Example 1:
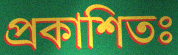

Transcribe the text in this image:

প্রকাশিতঃ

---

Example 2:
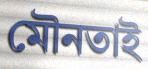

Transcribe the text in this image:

মৌনতাই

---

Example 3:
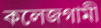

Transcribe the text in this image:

কলেজগামী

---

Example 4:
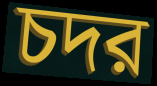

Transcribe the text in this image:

চদর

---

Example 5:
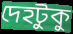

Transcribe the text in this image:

দেহটুকু